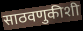
साठवणुकीशी